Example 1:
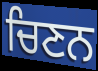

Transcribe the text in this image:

ਚਿਣਨ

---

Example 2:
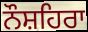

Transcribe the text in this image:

ਨੌਸ਼ਹਿਰਾ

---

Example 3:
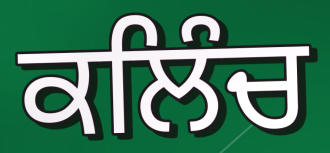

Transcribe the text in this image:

ਕਲਿੰਚ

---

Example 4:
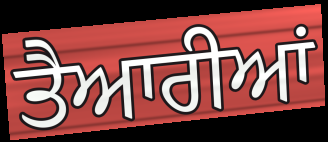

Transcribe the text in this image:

ਤੈਆਰੀਆਂ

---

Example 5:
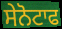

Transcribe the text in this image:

ਸੇਨੋਟਾਫ